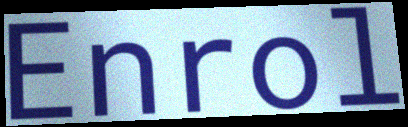
Enrol